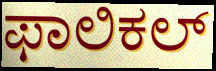
ಫಾಲಿಕಲ್